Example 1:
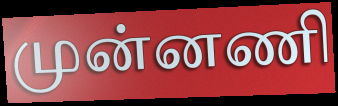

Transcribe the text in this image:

முன்னணி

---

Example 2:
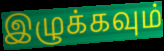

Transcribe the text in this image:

இழுக்கவும்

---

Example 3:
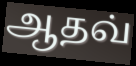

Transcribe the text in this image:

ஆதவ்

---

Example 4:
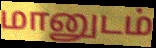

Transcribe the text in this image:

மானுடம்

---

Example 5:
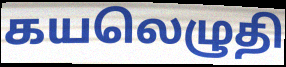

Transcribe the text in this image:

கயலெழுதி